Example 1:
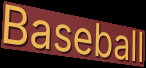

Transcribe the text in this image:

Baseball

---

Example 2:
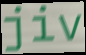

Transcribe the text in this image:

jiv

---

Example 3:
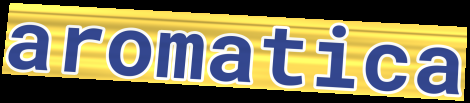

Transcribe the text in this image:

aromatica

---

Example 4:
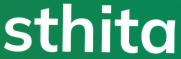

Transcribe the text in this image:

sthita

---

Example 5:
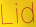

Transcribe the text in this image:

Lid